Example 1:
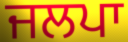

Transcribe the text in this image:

ਜਲਪਾ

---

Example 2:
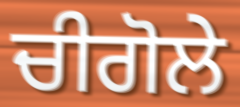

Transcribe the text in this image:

ਚੀਗੋਲੇ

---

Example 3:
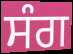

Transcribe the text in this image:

ਸੰਗ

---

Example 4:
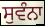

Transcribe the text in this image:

ਸੁਵੰਨਾ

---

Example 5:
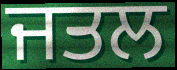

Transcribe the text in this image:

ਜਤਲ